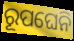
ରୂପଘେନି